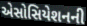
એસોસિયેશનની